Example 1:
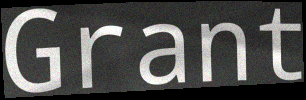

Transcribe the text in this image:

Grant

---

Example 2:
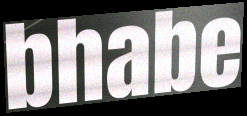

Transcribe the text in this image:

bhabe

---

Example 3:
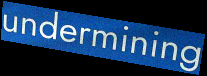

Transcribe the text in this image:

undermining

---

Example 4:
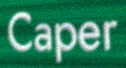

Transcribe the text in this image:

Caper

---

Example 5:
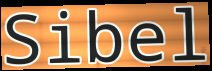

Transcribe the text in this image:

Sibel